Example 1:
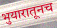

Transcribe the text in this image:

भुयारातूनच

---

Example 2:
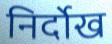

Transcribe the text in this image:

निर्दोख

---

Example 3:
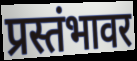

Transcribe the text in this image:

प्रस्तंभावर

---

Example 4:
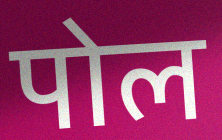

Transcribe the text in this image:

पोल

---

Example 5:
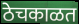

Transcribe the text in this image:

ठेचकाळत